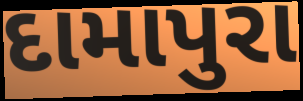
દામાપુરા